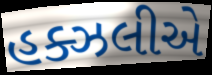
હક્ઝલીએ